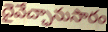
దైవేచ్ఛానుసారం